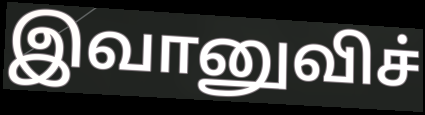
இவானுவிச்